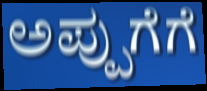
ಅಪ್ಪುಗೆಗೆ